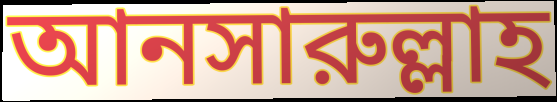
আনসারুল্লাহ